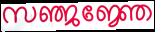
സഞ്ജജ്ഞേ